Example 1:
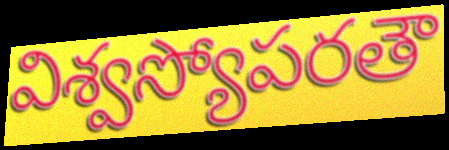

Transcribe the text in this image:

విశ్వస్యోపరతౌ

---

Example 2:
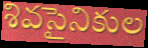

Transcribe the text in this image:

శివసైనికుల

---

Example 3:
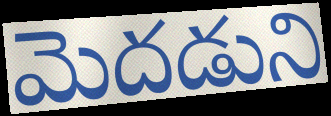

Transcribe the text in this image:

మెదడుని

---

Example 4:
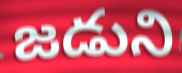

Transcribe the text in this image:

జడుని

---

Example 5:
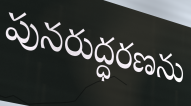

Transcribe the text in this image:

పునరుద్ధరణను